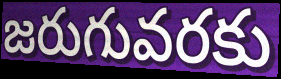
జరుగువరకు